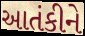
આતંકીને